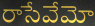
రాసేవేమో